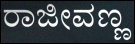
ರಾಜೀವಣ್ಣ